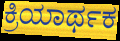
ಕ್ರಿಯಾರ್ಥಕ